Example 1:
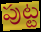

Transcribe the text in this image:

పుట్ట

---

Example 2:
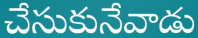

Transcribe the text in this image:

చేసుకునేవాడు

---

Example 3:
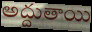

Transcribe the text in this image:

అద్దుతాయి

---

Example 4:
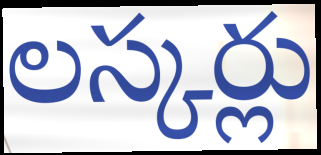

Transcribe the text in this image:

లస్కర్లు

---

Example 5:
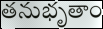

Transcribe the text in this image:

తనుభృతాం